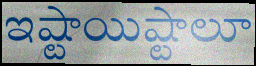
ఇష్టాయిష్టాలూ